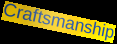
Craftsmanship